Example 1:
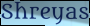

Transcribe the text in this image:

Shreyas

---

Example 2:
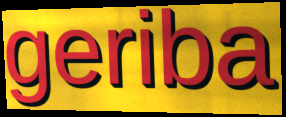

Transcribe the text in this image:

geriba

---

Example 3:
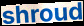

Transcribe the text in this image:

shroud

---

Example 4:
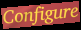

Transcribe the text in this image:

Configure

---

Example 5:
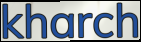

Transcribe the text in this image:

kharch